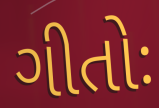
ગીતોઃ